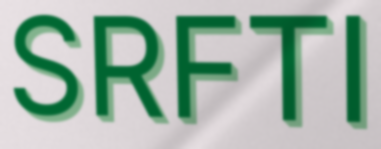
SRFTI